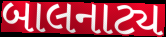
બાલનાટ્ય